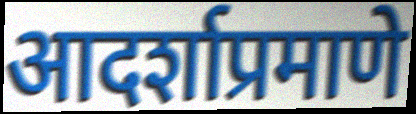
आदर्शाप्रमाणे